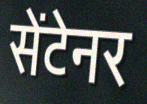
सेंटेनर